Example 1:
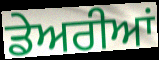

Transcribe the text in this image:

ਡੇਅਰੀਆਂ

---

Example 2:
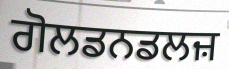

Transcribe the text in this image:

ਗੋਲਡਨਡਲਜ਼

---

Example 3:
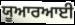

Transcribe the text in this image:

ਯੂਆਰਆਈ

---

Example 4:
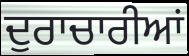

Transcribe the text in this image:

ਦੁਰਾਚਾਰੀਆਂ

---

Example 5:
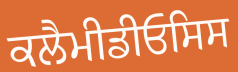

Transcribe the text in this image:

ਕਲੈਮੀਡੀਓਸਿਸ